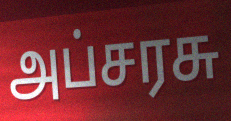
அப்சரசு